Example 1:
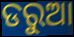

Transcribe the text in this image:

ଡରୁଆ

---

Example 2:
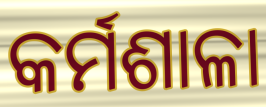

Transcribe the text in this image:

କର୍ମଶାଳା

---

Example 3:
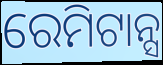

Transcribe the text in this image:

ରେମିଟାନ୍ସ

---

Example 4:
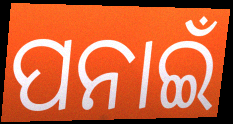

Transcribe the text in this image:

ପନାଇଁ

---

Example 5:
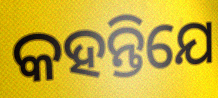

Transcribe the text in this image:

କହନ୍ତିଯେ